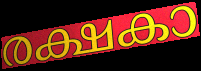
രക്ഷകാ